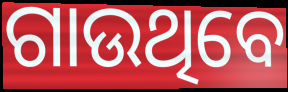
ଗାଉଥିବେ